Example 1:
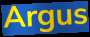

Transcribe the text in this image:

Argus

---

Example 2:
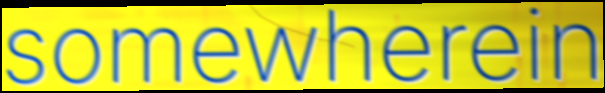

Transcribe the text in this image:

somewherein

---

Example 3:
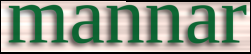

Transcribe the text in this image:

mannar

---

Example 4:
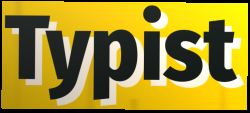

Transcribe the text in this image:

Typist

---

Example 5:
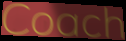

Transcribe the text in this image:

Coach